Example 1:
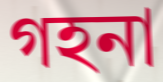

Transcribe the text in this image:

গহনা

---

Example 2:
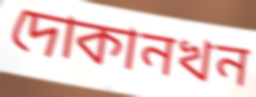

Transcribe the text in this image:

দোকানখন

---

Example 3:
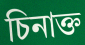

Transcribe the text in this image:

চিনাক্ত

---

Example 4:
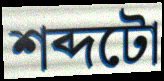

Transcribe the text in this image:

শব্দটো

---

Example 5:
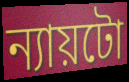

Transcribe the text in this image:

ন্যায়টো